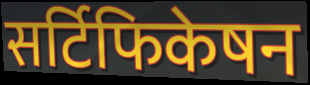
सर्टिफिकेषन